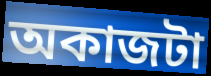
অকাজটা